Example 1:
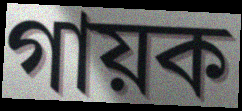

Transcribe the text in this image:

গায়ক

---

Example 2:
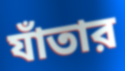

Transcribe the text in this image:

যাঁতার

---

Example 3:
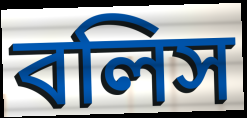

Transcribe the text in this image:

বলিস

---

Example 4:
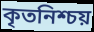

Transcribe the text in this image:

কৃতনিশ্চয়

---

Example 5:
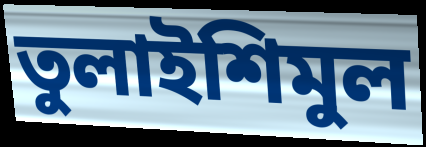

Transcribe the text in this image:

তুলাইশিমুল